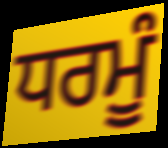
ਧਰਮੂੰ